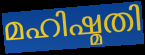
മഹിഷ്മതി